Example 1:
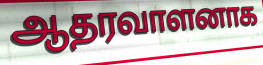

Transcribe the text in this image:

ஆதரவாளனாக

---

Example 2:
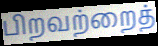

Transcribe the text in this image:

பிறவற்றைத்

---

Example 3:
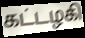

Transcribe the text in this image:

கட்டழகி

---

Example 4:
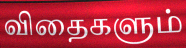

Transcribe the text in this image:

விதைகளும்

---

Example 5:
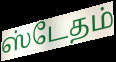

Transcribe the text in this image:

ஸ்டேதம்